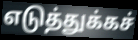
எடுத்துக்கச்